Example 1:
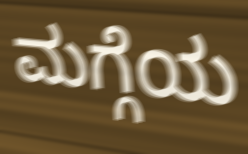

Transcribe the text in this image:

ಮಗ್ಗೆಯ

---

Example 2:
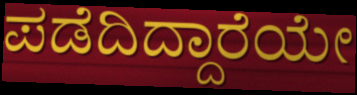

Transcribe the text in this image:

ಪಡೆದಿದ್ದಾರೆಯೇ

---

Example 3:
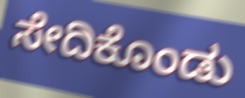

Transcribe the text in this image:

ಸೇದಿಕೊಂಡು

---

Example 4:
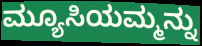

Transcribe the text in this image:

ಮ್ಯೂಸಿಯಮ್ಮನ್ನು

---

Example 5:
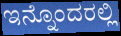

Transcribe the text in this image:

ಇನ್ನೊಂದರಲ್ಲಿ